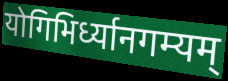
योगिभिर्ध्यानगम्यम्